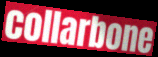
collarbone